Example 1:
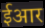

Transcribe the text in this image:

ईआर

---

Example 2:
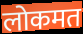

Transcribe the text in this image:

लोकमत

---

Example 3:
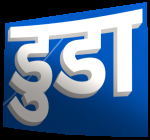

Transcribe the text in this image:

डुडा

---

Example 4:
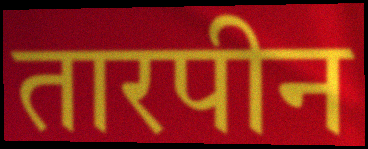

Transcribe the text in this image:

तारपीन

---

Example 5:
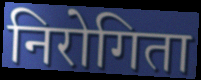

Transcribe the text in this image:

निरोगिता